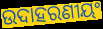
ଉଦାହରଣୀୟଂ